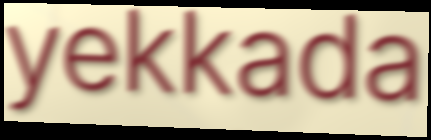
yekkada